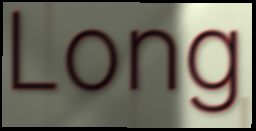
Long